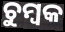
ଚୁମ୍ବକ